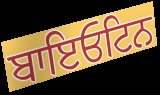
ਬਾਇਓਟਿਨ